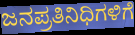
ಜನಪ್ರತಿನಿಧಿಗಳಿಗೆ